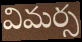
విమర్స